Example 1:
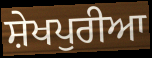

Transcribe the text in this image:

ਸ਼ੇਖਪੁਰੀਆ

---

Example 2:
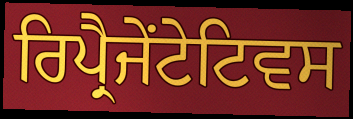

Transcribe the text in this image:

ਰਿਪ੍ਰੈਜੇਂਟੇਟਿਵਸ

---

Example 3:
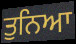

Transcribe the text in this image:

ਤੁਨਿਆ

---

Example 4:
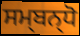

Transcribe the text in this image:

ਸਮ੍ਬਨ੍ਧੋ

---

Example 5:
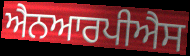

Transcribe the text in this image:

ਐਨਆਰਪੀਐਸ